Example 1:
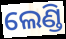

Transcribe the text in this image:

ଲେଣ୍ଡି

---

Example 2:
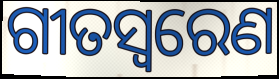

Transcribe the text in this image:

ଗୀତସ୍ବରେଣ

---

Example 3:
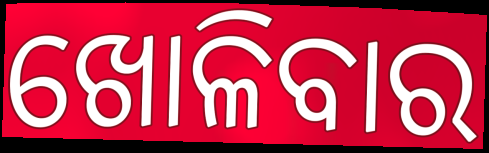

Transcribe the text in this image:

ଖୋଳିବାର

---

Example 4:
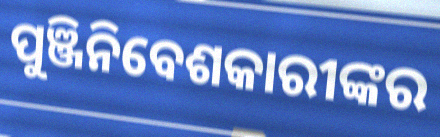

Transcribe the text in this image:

ପୁଞ୍ଜିନିବେଶକାରୀଙ୍କର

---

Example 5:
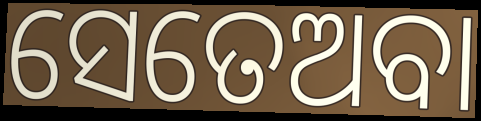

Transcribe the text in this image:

ସେତେଅବା